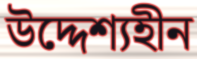
উদ্দেশ্যহীন